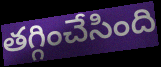
తగ్గించేసింది